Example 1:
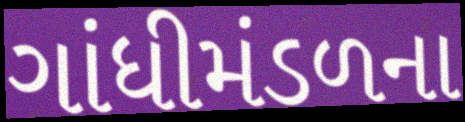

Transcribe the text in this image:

ગાંધીમંડળના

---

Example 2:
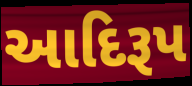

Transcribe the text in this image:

આદિરૂપ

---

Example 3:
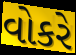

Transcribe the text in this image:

વોકરે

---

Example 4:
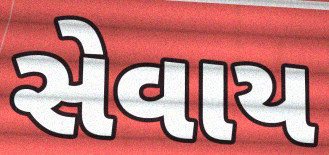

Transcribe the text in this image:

સેવાય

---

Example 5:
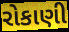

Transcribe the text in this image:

રોકાણી